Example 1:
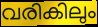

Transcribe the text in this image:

വരികിലും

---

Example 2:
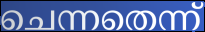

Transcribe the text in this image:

ചെന്നതെന്ന്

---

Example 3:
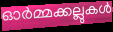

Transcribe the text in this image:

ഓർമ്മക്കല്ലുകൾ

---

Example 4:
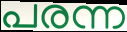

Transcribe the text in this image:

പരന്ന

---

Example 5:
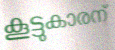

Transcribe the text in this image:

കൂട്ടുകാരന്